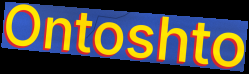
Ontoshto